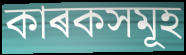
কাৰকসমূহ